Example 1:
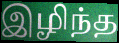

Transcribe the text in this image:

இழிந்த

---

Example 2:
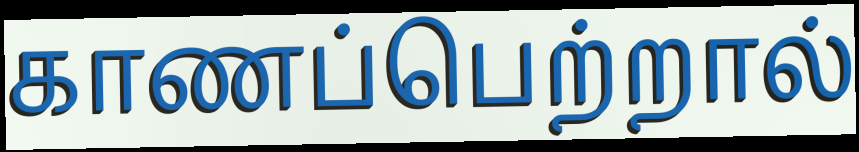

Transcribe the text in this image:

காணப்பெற்றால்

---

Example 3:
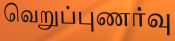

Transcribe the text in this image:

வெறுப்புணர்வு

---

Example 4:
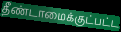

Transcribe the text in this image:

தீண்டாமைக்குட்பட்ட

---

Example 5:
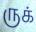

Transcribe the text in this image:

ருக்